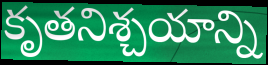
కృతనిశ్చయాన్ని